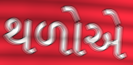
થળોએ